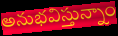
అనుభవిస్తున్నాం